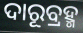
ଦାରୂବ୍ରହ୍ମ